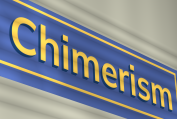
Chimerism